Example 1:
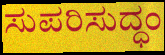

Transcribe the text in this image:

ಸುಪರಿಸುದ್ಧಂ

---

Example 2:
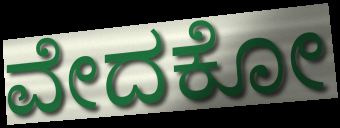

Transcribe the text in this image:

ವೇದಕೋ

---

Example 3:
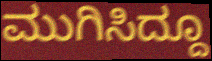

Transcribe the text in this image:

ಮುಗಿಸಿದ್ದೂ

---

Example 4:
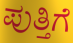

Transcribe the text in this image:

ಪುತ್ತಿಗೆ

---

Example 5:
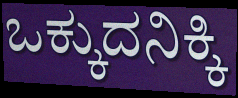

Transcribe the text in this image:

ಒಕ್ಕುದನಿಕ್ಕಿ